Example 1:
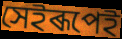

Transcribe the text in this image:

সেইৰূপেই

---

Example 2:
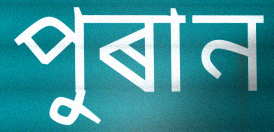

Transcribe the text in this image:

পুৰান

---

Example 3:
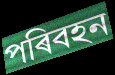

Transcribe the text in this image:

পৰিবহন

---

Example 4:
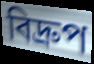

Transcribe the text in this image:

বিদ্ৰুপ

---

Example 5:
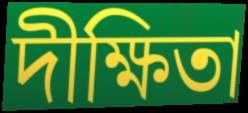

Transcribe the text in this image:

দীক্ষিতা